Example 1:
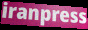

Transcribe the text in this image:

iranpress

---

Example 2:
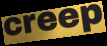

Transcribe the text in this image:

creep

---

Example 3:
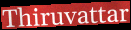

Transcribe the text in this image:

Thiruvattar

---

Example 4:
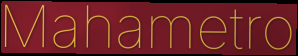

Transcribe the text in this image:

Mahametro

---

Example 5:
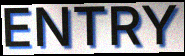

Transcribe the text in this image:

ENTRY